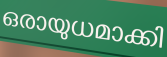
ഒരായുധമാക്കി